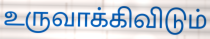
உருவாக்கிவிடும்